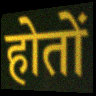
होतों